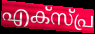
എക്സ്പ്ര